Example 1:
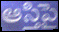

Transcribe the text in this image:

ఆస్తిపై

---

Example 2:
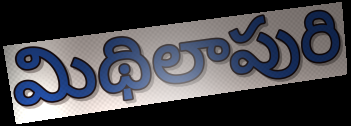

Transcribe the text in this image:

మిథిలాపురి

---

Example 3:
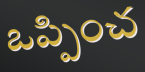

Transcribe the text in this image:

ఒప్పించ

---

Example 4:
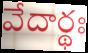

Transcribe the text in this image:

వేదార్థః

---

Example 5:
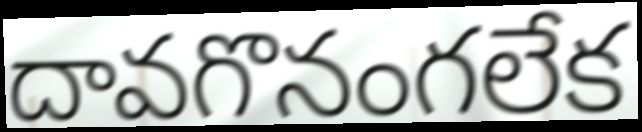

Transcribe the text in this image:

దావగొనంగలేక